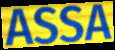
ASSA